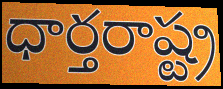
ధార్తరాష్ట్ర